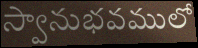
స్వానుభవములో